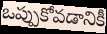
ఒప్పుకోవడానికీ